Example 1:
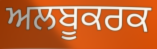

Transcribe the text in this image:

ਅਲਬੂਕਰਕ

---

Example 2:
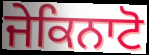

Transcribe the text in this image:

ਜੇਕਿਨਾਟੋ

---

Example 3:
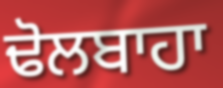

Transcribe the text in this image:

ਢੋਲਬਾਹਾ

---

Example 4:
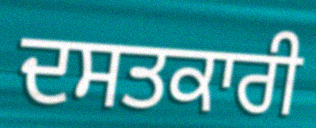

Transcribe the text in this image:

ਦਸਤਕਾਰੀ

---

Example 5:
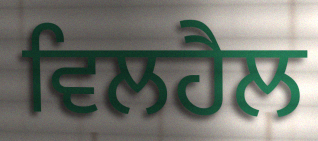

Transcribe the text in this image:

ਵਿਲਹੈਲ